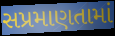
સપ્રમાણતામાં